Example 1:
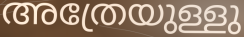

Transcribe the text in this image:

അത്രേയുള്ളു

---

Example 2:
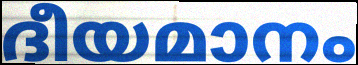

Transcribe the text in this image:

ദീയമാനം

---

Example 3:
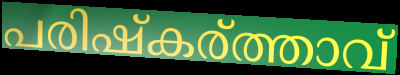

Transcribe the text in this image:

പരിഷ്കര്ത്താവ്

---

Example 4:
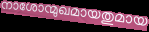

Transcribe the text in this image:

നാശോന്മുഖമായതുമായ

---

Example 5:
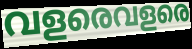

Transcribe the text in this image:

വളരെവളരെ